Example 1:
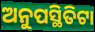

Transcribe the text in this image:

ଅନୁପସ୍ଥିତିଟା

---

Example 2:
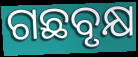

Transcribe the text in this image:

ଗଛବୃକ୍ଷ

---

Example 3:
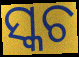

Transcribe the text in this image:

ସ୍କଚ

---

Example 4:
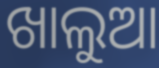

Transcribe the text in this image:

ଖାଲୁଆ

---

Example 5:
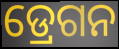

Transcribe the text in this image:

ଡ୍ରେଗନ